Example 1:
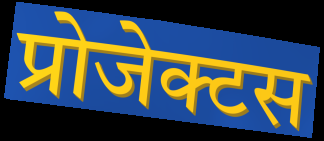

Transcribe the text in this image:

प्रोजेक्‍टस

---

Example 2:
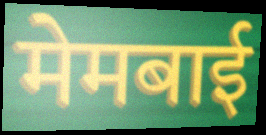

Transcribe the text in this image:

मेमबाई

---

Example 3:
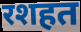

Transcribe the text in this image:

रशहत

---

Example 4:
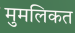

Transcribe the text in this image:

मुमलिकत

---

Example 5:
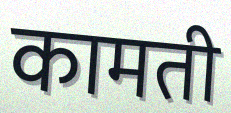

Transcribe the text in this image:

कामती